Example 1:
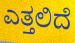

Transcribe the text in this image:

ಎತ್ತಲಿದೆ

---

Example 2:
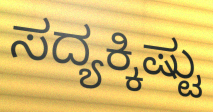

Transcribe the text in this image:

ಸದ್ಯಕ್ಕಿಷ್ಟು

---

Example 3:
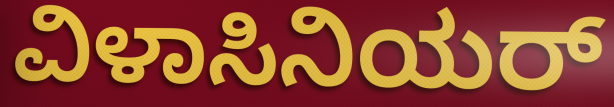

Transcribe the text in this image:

ವಿಳಾಸಿನಿಯರ್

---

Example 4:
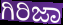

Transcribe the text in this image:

ಗಿರಿಜಾ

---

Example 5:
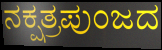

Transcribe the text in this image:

ನಕ್ಷತ್ರಪುಂಜದ